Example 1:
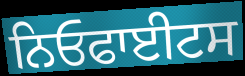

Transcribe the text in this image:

ਨਿਓਫਾਈਟਸ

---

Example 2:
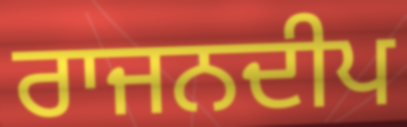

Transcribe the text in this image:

ਰਾਜਨਦੀਪ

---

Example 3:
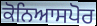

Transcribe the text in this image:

ਕੋਨਿਆਸਪੋਰ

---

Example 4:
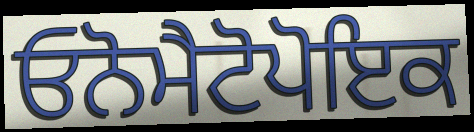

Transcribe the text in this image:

ਓਨੋਮੈਟੋਪੋਇਕ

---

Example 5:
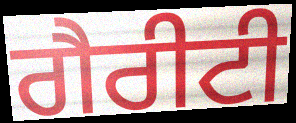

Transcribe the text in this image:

ਗੈਰੀਟੀ